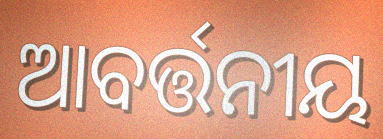
ଆବର୍ତ୍ତନୀୟ